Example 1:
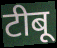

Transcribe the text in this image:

टीबू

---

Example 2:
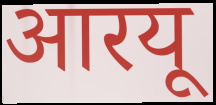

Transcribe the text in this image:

आरयू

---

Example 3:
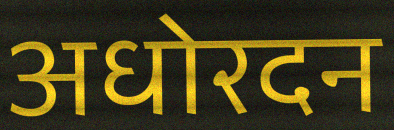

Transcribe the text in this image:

अधोरदन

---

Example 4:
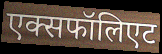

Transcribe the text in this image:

एक्सफॉलिएट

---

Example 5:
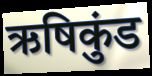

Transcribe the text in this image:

ऋषिकुंड